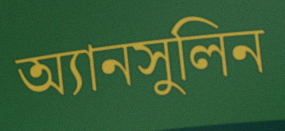
অ্যানসুলিন